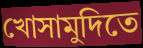
খোসামুদিতে